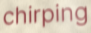
chirping